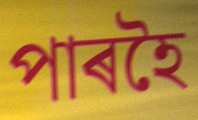
পাৰহৈ